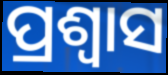
ପ୍ରଶ୍ୱାସ